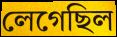
লেগেছিল